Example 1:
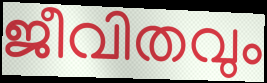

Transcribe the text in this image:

ജീവിതവും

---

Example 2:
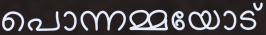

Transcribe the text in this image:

പൊന്നമ്മയോട്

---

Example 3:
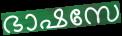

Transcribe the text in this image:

ഭാഷസേ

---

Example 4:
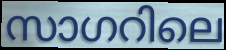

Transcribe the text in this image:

സാഗറിലെ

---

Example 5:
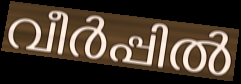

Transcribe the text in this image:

വീർപ്പിൽ